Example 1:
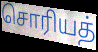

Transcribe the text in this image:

சொரியத்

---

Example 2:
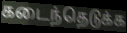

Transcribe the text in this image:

கடைந்தெடுக்க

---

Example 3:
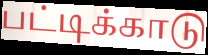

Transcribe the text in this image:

பட்டிக்காடு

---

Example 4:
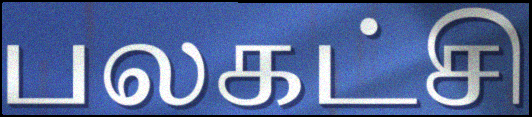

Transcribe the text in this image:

பலகட்சி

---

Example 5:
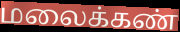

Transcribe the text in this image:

மலைக்கண்